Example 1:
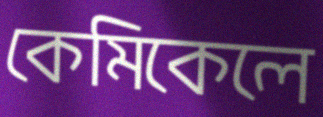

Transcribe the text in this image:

কেমিকেলে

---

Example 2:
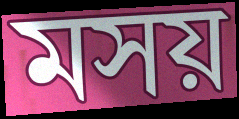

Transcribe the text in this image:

মসয়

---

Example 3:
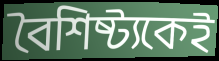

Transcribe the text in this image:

বৈশিষ্ট্যকেই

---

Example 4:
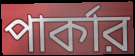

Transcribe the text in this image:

পার্কার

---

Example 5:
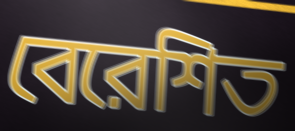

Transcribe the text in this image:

বেরেশিত